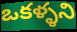
ఒకళ్ళని